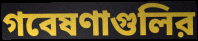
গবেষণাগুলির